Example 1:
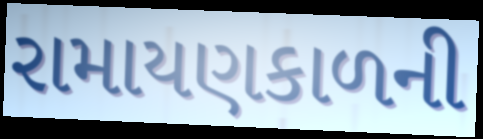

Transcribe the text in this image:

રામાયણકાળની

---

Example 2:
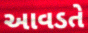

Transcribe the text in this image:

આવડતે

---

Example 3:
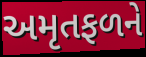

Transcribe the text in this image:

અમૃતફળને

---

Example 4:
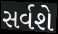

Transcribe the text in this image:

સર્વશે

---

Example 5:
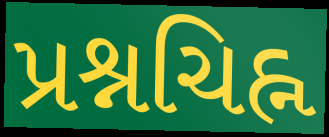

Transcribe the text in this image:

પ્રશ્નચિહ્ન